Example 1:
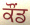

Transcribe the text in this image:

ਕੌਂਡ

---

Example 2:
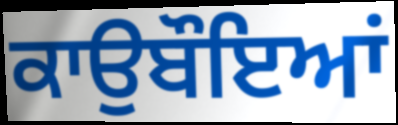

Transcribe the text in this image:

ਕਾਉਬੌਇਆਂ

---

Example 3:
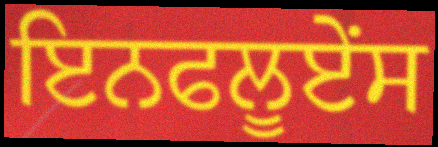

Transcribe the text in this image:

ਇਨਫਲੂਏਂਸ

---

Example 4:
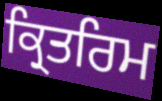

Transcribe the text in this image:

ਕ੍ਰਿਤਰਿਮ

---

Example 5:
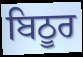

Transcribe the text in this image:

ਬਿਠੂਰ